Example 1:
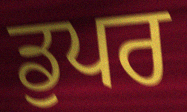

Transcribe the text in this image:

ਡੁਪਰ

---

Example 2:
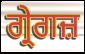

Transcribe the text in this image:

ਗ੍ਰੇਗਜ਼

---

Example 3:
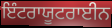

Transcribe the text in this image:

ਇੰਟਰਾਯੂਟਰਾਈਨ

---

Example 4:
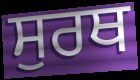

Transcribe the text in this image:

ਸੁਰਥ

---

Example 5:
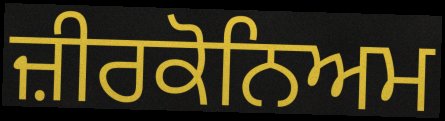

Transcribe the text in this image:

ਜ਼ੀਰਕੋਨਿਅਮ